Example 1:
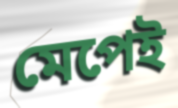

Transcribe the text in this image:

মেপেই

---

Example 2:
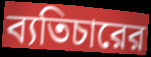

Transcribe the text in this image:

ব্যতিচারের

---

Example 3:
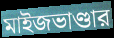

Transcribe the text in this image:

মাইজভাণ্ডার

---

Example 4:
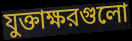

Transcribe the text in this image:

যুক্তাক্ষরগুলো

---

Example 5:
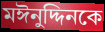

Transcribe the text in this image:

মঈনুদ্দিনকে